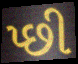
પ્છી